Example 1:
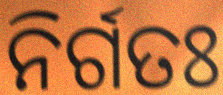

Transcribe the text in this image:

ନିର୍ଗତଃ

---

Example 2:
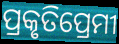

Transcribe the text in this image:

ପ୍ରକୃତିପ୍ରେମୀ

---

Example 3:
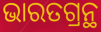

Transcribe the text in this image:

ଭାରତଗ୍ରନ୍ଥ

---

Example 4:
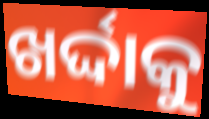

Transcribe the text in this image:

ଖର୍ଦ୍ଦାକୁ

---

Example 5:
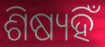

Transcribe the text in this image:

ଶିଷ୍ୟହିଁ